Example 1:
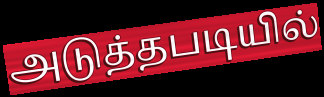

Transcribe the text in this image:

அடுத்தபடியில்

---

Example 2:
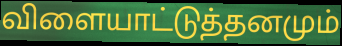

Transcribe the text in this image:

விளையாட்டுத்தனமும்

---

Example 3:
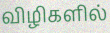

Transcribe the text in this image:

விழிகளில்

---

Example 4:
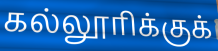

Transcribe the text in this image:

கல்லூரிக்குக்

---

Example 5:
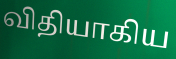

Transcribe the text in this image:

விதியாகிய